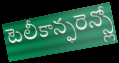
టెలీకాన్ఫరెన్స్లో